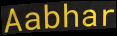
Aabhar